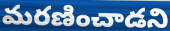
మరణించాడని